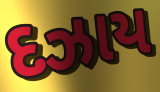
દઝાય